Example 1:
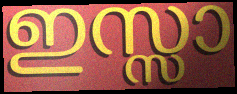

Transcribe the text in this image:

ഇസ്സാ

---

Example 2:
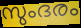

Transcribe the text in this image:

സുംദരം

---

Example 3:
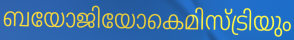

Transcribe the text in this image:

ബയോജിയോകെമിസ്ട്രിയും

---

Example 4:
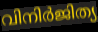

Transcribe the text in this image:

വിനിർജിത്യ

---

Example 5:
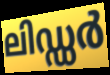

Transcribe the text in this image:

ലിഡ്ഡർ